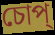
চোপ্